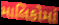
માલિકોમાં